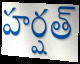
హర్షత్